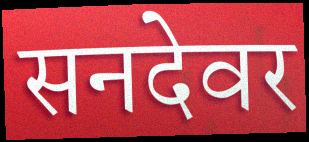
सनदेवर